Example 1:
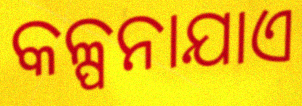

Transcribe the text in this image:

କଳ୍ପନାଯାଏ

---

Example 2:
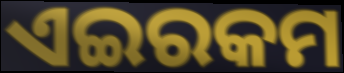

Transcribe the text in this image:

ଏଇରକମ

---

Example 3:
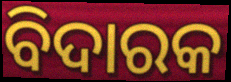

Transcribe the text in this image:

ବିଦାରକ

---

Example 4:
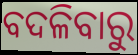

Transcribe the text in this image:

ବଦଳିବାରୁ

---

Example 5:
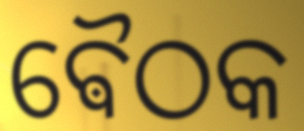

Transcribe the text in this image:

ଵୈଠକ